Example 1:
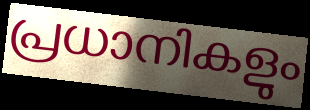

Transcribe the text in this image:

പ്രധാനികളും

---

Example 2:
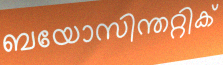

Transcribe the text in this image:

ബയോസിന്തറ്റിക്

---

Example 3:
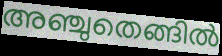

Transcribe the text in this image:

അഞ്ചുതെങ്ങിൽ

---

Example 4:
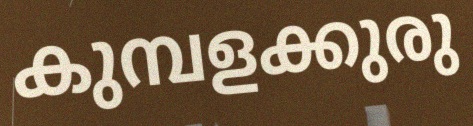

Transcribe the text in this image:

കുമ്പളക്കുരു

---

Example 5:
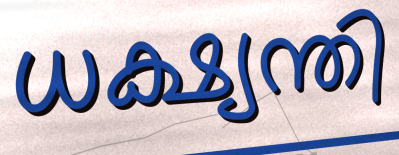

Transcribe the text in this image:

ധക്ഷ്യന്തി